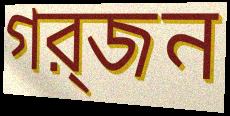
গর্‍জন